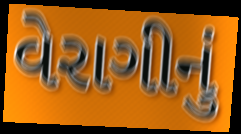
વેરાગીનું